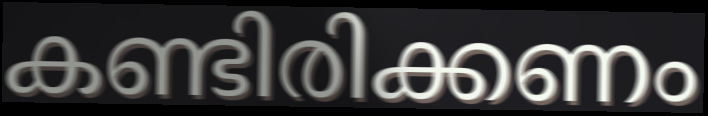
കണ്ടിരിക്കണം